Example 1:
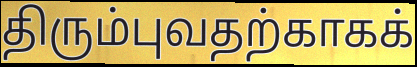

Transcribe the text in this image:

திரும்புவதற்காகக்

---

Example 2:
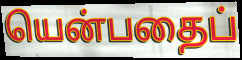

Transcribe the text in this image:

யென்பதைப்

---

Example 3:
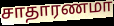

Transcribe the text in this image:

சாதாரணமா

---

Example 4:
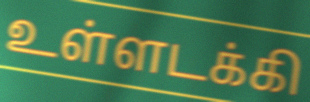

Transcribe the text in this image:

உள்ளடக்கி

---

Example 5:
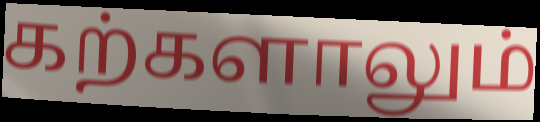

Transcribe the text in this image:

கற்களாலும்